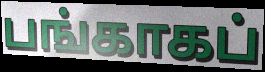
பங்காகப்